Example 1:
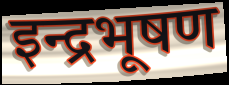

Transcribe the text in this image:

इन्द्रभूषण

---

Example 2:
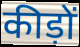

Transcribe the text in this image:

कीड़ों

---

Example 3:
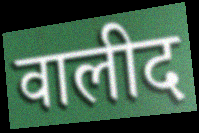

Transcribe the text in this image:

वालीद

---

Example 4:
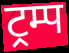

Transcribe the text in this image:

ट्रम्‍प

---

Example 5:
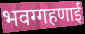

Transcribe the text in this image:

भवग्गहणाई